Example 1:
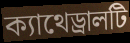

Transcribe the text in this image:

ক্যাথেড্রালটি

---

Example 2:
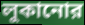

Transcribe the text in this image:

লুকানোর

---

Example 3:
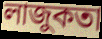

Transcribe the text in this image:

লাজুকতা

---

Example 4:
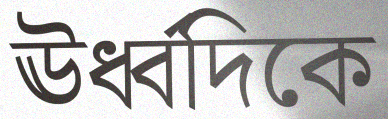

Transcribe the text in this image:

ঊর্ধ্বদিকে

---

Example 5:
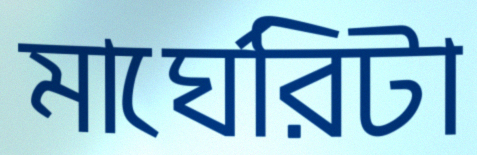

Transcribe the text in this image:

মার্ঘেরিটা